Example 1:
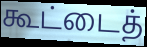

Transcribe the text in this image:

கூட்டைத்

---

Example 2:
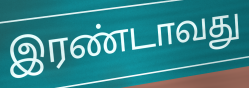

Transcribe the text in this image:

இரண்டாவது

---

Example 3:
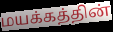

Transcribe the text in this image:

மயக்கத்தின்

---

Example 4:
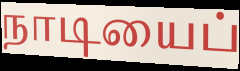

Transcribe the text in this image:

நாடியைப்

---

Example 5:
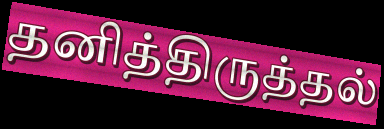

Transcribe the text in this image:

தனித்திருத்தல்